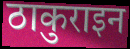
ठाकुराइन